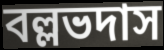
বল্লভদাস